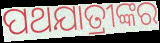
ପଥଯାତ୍ରୀଙ୍କର